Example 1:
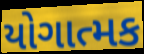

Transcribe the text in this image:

યોગાત્મક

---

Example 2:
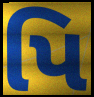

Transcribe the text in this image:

પિ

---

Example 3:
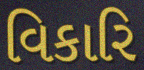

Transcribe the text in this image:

વિકારિ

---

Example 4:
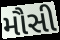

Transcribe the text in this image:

મૌસી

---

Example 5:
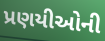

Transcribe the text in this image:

પ્રણયીઓની